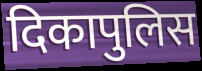
दिकापुलिस